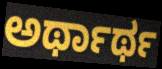
ಅರ್ಥಾರ್ಥ